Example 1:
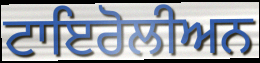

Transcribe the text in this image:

ਟਾਇਰੋਲੀਅਨ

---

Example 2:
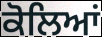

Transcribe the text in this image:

ਕੋਲਿਆਂ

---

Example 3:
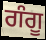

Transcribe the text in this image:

ਗੰਗੂ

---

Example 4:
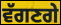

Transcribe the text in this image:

ਵੱਗਣਗੇ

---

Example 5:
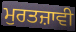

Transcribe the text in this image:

ਮੁਰਤਜ਼ਾਵੀ